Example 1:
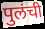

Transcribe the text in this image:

पुलंची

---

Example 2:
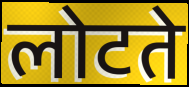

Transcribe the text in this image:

लोटते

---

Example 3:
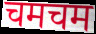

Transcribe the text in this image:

चमचम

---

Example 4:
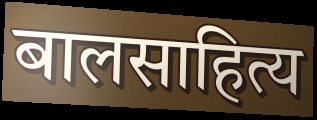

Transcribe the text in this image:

बालसाहित्य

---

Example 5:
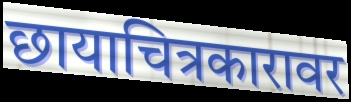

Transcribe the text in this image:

छायाचित्रकारावर